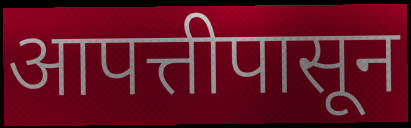
आपत्तीपासून